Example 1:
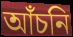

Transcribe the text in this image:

আঁচনি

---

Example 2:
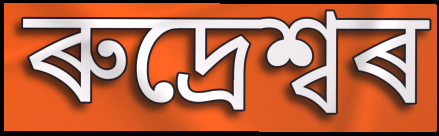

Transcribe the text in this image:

ৰুদ্ৰেশ্বৰ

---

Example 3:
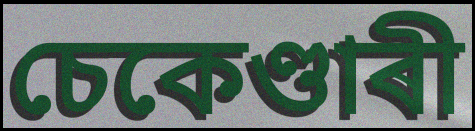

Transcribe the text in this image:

চেকেণ্ডাৰী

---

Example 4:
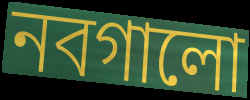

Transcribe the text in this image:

নবগালো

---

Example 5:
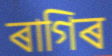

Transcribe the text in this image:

ৰাগিৰ